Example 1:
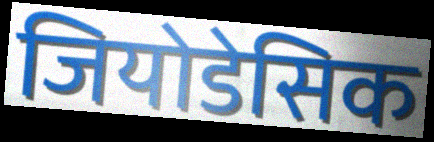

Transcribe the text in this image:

जियोडेसिक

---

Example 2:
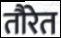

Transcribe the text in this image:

तौरेत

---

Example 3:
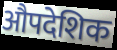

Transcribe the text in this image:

औपदेशिक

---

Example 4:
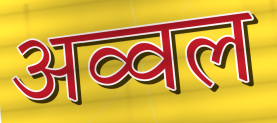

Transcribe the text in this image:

अव्वल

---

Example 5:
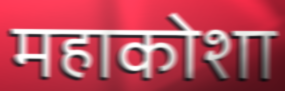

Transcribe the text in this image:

महाकोशा